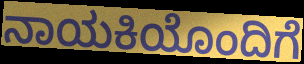
ನಾಯಕಿಯೊಂದಿಗೆ